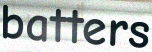
batters